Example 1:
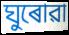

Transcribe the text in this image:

ঘুৰোৱা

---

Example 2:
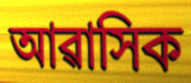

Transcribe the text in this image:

আৱাসিক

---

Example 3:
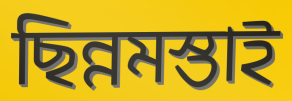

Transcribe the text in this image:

ছিন্নমস্তাই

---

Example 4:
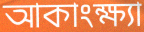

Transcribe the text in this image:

আকাংক্ষ্যা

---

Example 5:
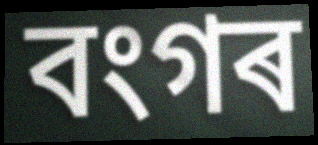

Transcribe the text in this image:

বংগৰ